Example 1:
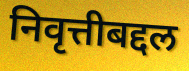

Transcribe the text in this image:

निवृत्तीबद्दल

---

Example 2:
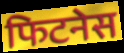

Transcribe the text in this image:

फिटनेस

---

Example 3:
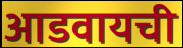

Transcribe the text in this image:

आडवायची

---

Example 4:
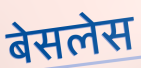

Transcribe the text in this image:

बेसलेस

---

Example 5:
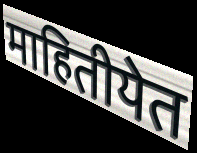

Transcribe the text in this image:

माहितीयेत